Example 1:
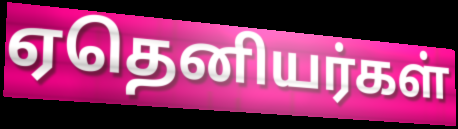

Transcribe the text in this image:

ஏதெனியர்கள்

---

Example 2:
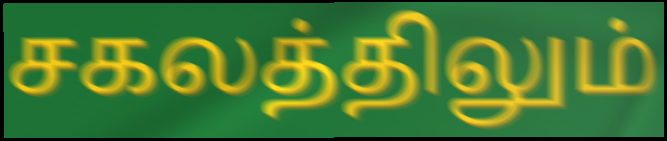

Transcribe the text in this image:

சகலத்திலும்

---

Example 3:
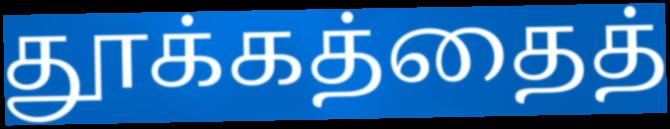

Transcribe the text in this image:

தூக்கத்தைத்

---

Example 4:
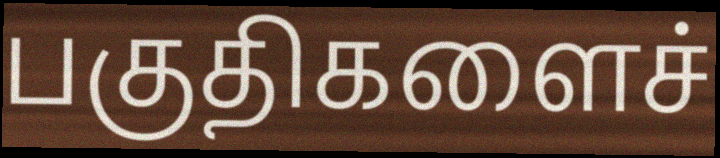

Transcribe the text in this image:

பகுதிகளைச்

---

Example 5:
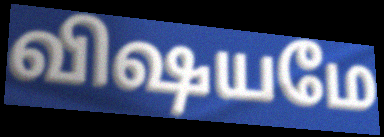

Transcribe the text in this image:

விஷயமே